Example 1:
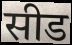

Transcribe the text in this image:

सीड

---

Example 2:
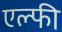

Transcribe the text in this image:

एल्फी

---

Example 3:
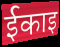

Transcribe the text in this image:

ईकाइ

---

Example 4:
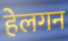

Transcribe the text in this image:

हेलगन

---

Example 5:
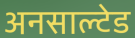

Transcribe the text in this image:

अनसाल्टेड